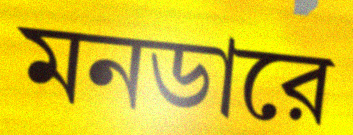
মনডারে